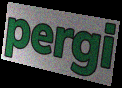
pergi